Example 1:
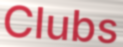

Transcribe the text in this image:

Clubs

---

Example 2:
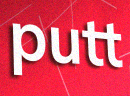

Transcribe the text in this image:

putt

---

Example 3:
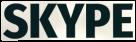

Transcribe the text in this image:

SKYPE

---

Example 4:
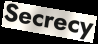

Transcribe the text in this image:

Secrecy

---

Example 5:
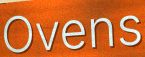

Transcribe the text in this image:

Ovens